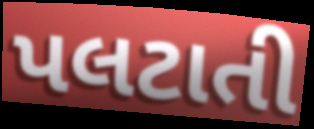
પલટાતી